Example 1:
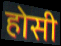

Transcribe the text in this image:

होसी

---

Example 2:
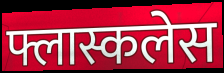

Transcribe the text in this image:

फ्लास्कलेस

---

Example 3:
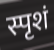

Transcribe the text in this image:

स्पृशं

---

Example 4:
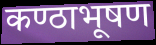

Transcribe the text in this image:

कण्ठाभूषण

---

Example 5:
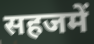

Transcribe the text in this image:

सहजमें